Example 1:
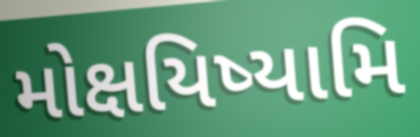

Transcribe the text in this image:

મોક્ષયિષ્યામિ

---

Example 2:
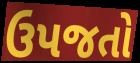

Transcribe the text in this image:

ઉપજતો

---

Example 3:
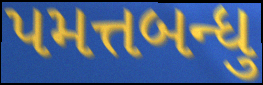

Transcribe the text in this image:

પમત્તબન્ધુ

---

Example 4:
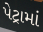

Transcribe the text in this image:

પેટ્રામાં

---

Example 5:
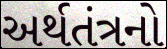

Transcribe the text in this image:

અર્થતંત્રનો